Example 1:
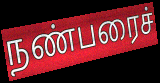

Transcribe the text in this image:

நண்பரைச்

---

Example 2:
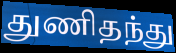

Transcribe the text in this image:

துணிதந்து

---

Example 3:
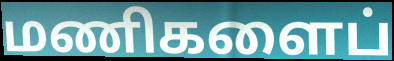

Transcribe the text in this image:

மணிகளைப்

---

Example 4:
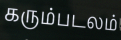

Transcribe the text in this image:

கரும்படலம்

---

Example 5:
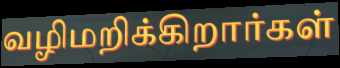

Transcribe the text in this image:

வழிமறிக்கிறார்கள்